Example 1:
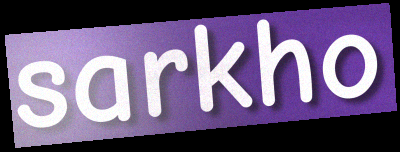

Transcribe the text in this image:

sarkho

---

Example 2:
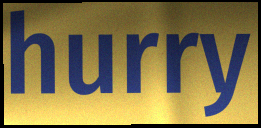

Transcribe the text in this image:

hurry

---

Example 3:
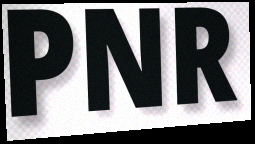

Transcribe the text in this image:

PNR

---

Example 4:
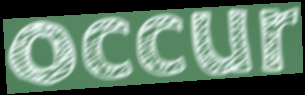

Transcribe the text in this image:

occur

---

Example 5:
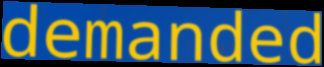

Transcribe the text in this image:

demanded